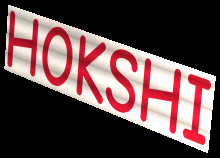
HOKSHI